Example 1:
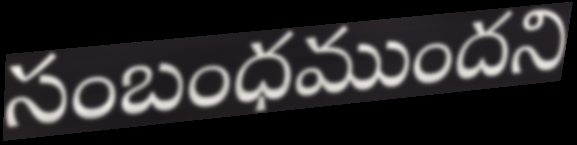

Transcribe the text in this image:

సంబంధముందని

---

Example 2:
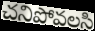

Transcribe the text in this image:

చనిపోవలసి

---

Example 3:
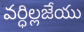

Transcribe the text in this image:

వర్ధిల్లజేయు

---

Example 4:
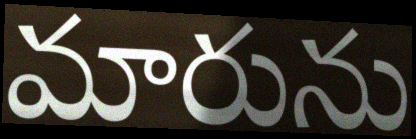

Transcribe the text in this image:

మారును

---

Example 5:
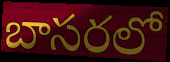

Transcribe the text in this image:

బాసరలో